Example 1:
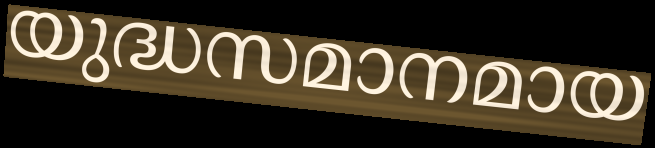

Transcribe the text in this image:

യുദ്ധസമാനമായ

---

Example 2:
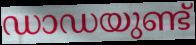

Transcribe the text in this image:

ഡാഡയുണ്ട്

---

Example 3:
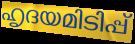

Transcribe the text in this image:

ഹൃദയമിടിപ്പ്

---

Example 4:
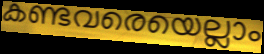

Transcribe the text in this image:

കണ്ടവരെയെല്ലാം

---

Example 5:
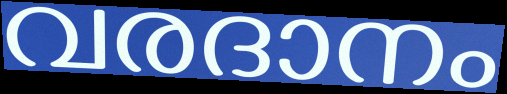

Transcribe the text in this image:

വരദാനം